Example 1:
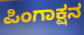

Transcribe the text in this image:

ಪಿಂಗಾಕ್ಷನ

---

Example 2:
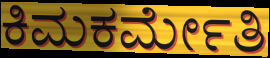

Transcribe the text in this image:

ಕಿಮಕರ್ಮೇತಿ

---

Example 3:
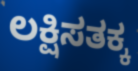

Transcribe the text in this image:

ಲಕ್ಷಿಸತಕ್ಕ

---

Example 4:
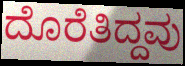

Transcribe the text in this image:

ದೊರೆತಿದ್ದವು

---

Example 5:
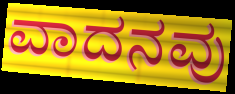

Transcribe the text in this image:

ವಾದನವು